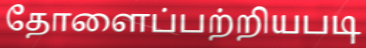
தோளைப்பற்றியபடி